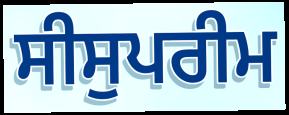
ਸੀਸੁਪਰੀਮ